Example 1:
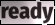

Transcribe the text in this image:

ready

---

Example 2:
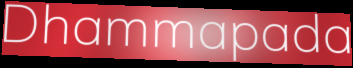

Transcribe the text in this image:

Dhammapada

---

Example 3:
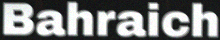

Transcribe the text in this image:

Bahraich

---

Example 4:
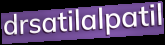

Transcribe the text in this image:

drsatilalpatil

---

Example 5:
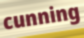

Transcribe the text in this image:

cunning